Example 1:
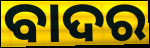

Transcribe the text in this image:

ବାଦର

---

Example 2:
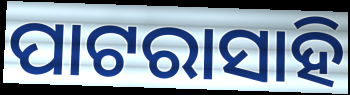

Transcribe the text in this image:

ପାଟରାସାହି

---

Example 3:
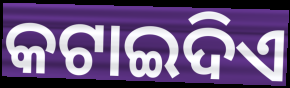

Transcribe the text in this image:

କଟାଇଦିଏ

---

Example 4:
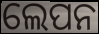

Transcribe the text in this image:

ଲେପନ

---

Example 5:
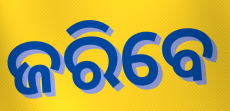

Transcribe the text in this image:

ଜରିବେ